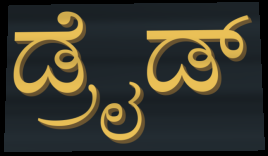
ಡ್ರೈಡ್